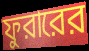
ফুরারের